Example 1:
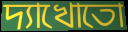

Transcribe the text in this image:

দ্যাখোতো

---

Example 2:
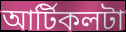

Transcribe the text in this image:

আর্টিকলটা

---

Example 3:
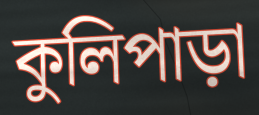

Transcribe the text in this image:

কুলিপাড়া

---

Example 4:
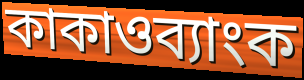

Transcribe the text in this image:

কাকাওব্যাংক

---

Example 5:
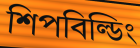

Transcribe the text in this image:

শিপবিল্ডিং